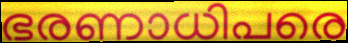
ഭരണാധിപരെ